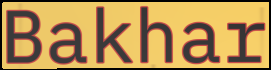
Bakhar